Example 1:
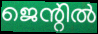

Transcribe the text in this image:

ജെന്റിൽ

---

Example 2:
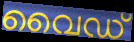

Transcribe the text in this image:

വൈഡ്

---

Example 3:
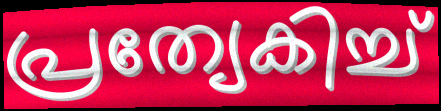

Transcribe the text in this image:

പ്രത്യേകിച്ച്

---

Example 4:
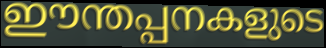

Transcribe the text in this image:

ഈന്തപ്പനകളുടെ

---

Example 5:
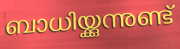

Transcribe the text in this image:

ബാധിയ്ക്കുന്നുണ്ട്